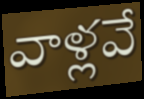
వాళ్లవే